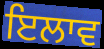
ਇਲਾਵ